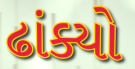
ઢાંક્યો